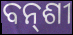
ବନ୍‌ଶୀ